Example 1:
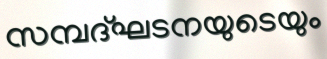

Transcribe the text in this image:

സമ്പദ്ഘടനയുടെയും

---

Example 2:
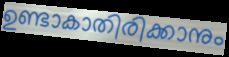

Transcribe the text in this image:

ഉണ്ടാകാതിരിക്കാനും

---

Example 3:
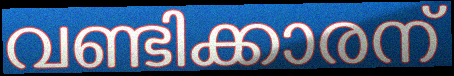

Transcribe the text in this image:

വണ്ടിക്കാരന്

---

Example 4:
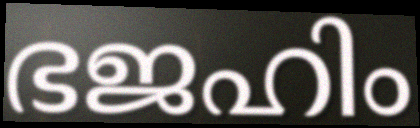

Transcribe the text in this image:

ഭജഹിം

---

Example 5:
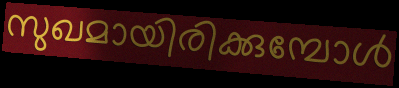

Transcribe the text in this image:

സുഖമായിരിക്കുമ്പോൾ